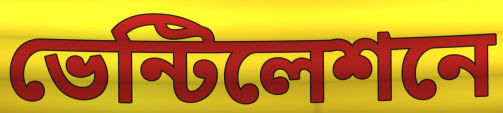
ভেন্টিলেশনে